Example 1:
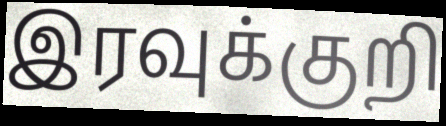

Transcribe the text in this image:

இரவுக்குறி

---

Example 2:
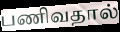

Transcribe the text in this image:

பணிவதால்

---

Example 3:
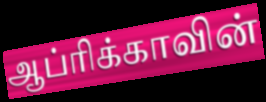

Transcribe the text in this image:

ஆப்ரிக்காவின்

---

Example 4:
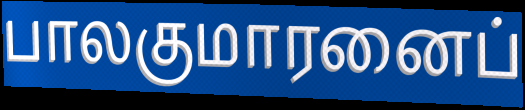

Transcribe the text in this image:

பாலகுமாரனைப்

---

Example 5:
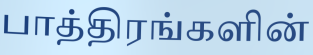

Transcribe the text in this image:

பாத்திரங்களின்